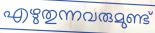
എഴുതുന്നവരുമുണ്ട്